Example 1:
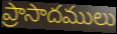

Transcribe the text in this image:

ప్రాసాదములు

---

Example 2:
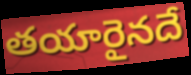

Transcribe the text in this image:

తయారైనదే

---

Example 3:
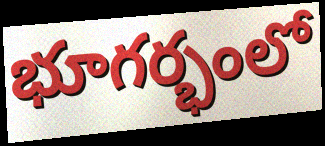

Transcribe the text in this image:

భూగర్భంలో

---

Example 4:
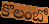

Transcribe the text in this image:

కొలంబో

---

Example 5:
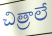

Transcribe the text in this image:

చిత్రాలే